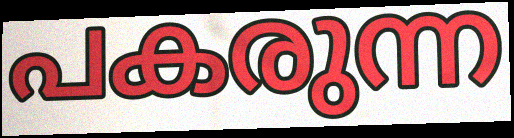
പകരുന്ന